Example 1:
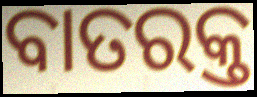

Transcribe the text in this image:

ବାତରକ୍ତ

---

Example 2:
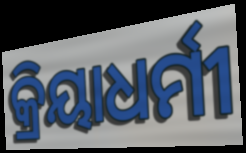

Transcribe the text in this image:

କ୍ରିୟାଧର୍ମୀ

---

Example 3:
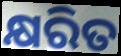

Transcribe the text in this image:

କ୍ଷରିତ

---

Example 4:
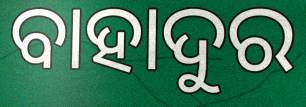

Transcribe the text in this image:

ବାହାଦୁର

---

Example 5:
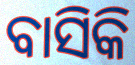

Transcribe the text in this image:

ବାସିକି